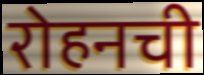
रोहनची